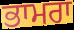
ਭਾਮਰਾ